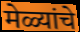
मेळ्यांचे